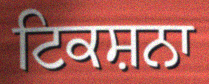
ਟਿਕਸ਼ਨਾ